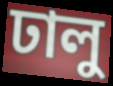
ঢালু